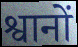
श्वानों